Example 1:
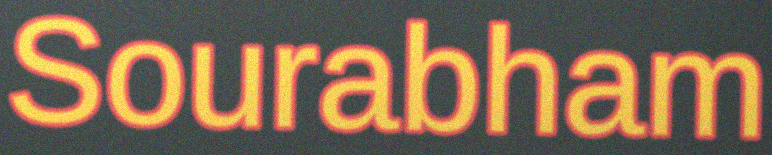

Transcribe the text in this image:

Sourabham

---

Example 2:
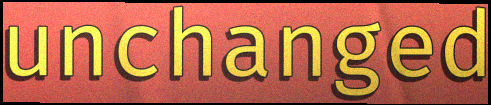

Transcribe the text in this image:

unchanged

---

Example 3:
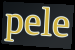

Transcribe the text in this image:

pele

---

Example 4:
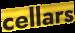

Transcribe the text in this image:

cellars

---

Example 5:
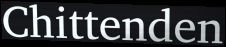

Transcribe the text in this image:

Chittenden